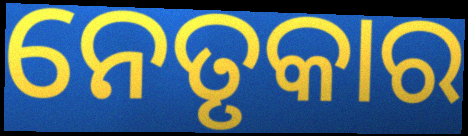
ନେତୃକାର